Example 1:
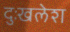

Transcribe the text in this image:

दुःखलेश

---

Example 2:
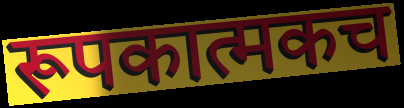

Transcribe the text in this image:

रूपकात्मकच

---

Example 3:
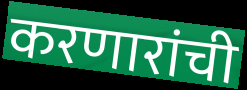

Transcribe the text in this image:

करणारांची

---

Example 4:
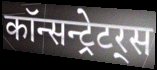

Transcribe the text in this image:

कॉन्सन्ट्रेटर्स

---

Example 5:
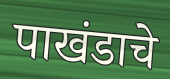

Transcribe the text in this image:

पाखंडाचे